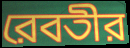
রেবতীর